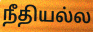
நீதியல்ல